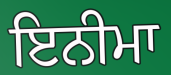
ਇਨੀਮਾ